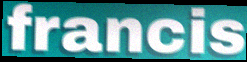
francis